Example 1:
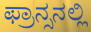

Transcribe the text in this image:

ಫ್ರಾನ್ಸನಲ್ಲಿ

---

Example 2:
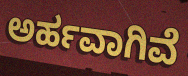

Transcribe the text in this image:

ಅರ್ಹವಾಗಿವೆ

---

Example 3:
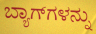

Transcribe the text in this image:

ಬ್ಯಾಗ್‍ಗಳನ್ನು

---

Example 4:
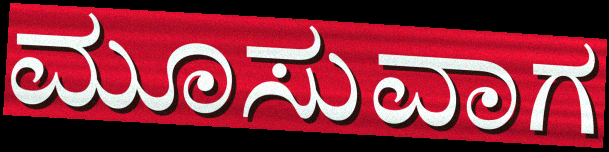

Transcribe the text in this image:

ಮೂಸುವಾಗ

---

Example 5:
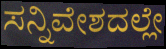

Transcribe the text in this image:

ಸನ್ನಿವೇಶದಲ್ಲೇ